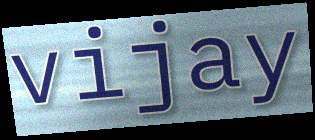
vijay